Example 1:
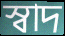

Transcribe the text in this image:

স্বাদ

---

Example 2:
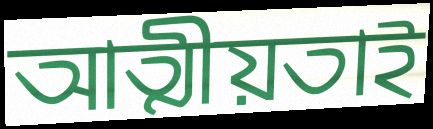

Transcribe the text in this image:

আত্মীয়তাই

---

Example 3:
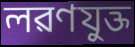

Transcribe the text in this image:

লৱণযুক্ত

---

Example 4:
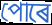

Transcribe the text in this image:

পোৰে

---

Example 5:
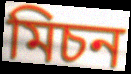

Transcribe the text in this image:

মিচন